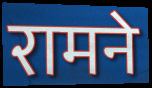
रामने